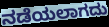
ನಡೆಯಲಾಗದು